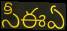
సీఈఏ